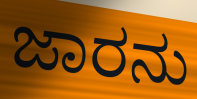
ಜಾರನು